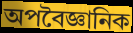
অপবৈজ্ঞানিক